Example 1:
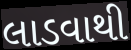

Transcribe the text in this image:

લાડવાથી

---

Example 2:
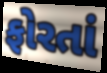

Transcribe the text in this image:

ફોરતાં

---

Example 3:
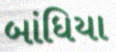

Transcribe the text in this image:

બાંધિયા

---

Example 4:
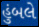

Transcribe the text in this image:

હુંબલે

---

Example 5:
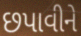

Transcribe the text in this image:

છપાવીને